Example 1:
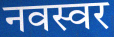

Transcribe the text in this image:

नवस्वर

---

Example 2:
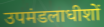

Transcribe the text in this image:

उपमंडलाधीशों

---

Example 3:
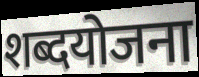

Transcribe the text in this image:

शब्दयोजना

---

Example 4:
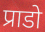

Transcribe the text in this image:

प्राडो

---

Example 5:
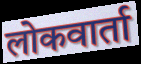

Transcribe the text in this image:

लोकवार्ता